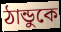
ঠান্ডুকে